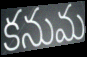
కనుమ